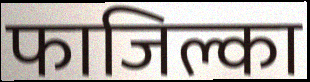
फाजिल्का